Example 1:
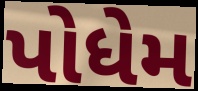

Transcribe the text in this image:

પોધેમ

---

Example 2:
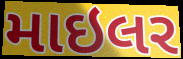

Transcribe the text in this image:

માઇલર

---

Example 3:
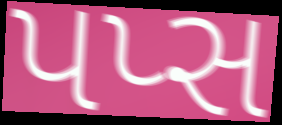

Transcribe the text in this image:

પપ્સ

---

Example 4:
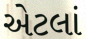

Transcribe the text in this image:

એટલાં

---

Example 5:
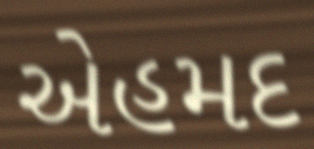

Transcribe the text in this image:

એહમદ